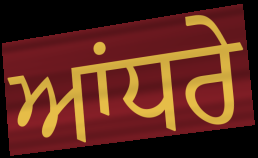
ਆਂਧਰੇ